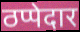
ठप्पेदार